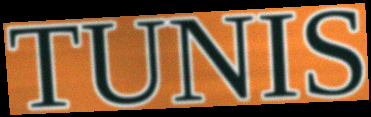
TUNIS